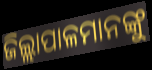
ଜିଲ୍ଲାପାଳମାନଙ୍କୁ